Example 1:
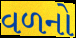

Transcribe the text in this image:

વળનો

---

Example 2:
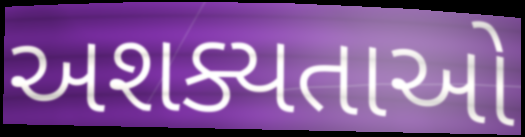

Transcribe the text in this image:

અશક્યતાઓ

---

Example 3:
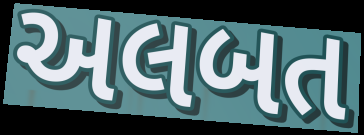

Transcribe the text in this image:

અલબત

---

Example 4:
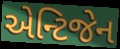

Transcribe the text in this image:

એન્ટિજેન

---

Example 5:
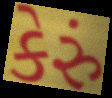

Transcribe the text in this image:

કેરું